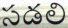
సడలి